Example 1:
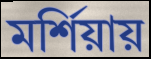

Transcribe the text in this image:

মর্শিয়ায়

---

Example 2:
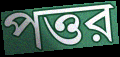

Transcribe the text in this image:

পত্তর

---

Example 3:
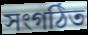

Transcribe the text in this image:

সংগঠিত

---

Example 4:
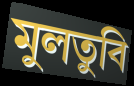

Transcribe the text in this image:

মুলতুবি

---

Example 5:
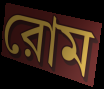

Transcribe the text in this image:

রোম